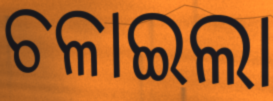
ଚଳାଇଲା